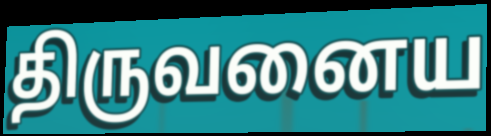
திருவனைய